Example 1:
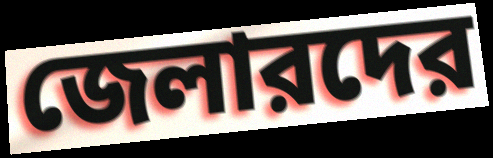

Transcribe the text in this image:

জেলারদের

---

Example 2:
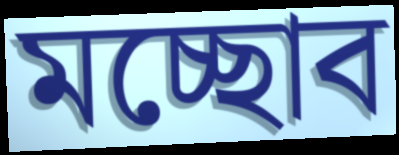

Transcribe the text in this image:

মচ্ছোব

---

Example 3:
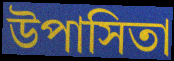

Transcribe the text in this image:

উপাসিতা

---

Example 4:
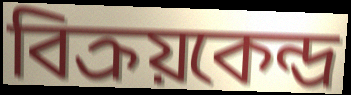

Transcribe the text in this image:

বিক্রয়কেন্দ্র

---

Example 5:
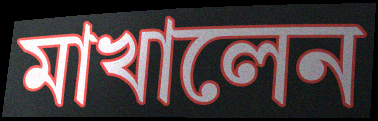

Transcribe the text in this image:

মাখালেন